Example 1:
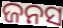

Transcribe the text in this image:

ଜନସ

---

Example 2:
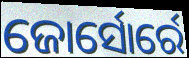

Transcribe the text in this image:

ଜୋର୍ସୋର୍ରେ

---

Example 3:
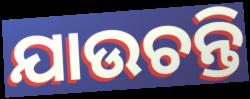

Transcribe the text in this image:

ଯାଉଚନ୍ତି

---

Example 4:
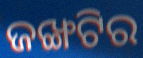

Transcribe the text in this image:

ଜଙ୍ଖଟିର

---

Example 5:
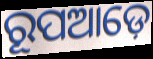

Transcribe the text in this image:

ରୂପଆଡ଼େ